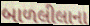
બાળલીલાના